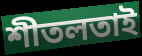
শীতলতাই